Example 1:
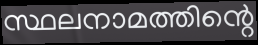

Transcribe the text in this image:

സ്ഥലനാമത്തിന്റെ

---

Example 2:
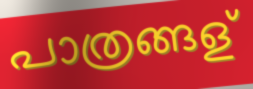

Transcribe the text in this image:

പാത്രങ്ങള്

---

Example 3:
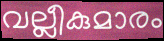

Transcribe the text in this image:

വല്ലീകുമാരം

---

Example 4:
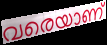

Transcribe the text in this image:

വരെയാണ്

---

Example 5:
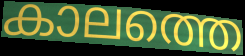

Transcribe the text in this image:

കാലത്തെ